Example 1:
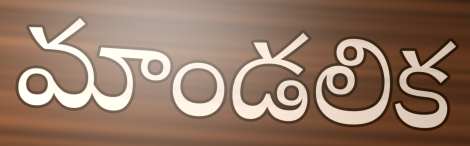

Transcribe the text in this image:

మాండలిక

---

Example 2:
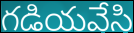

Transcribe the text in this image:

గడియవేసి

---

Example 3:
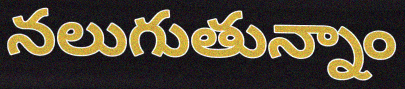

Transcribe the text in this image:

నలుగుతున్నాం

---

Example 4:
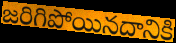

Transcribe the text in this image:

జరిగిపోయినదానికి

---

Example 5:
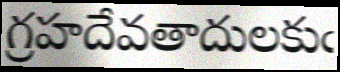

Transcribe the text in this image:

గ్రహదేవతాదులకుఁ